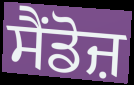
ਸੈਂਡੋਜ਼